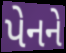
પેનને